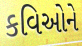
કવિઓને